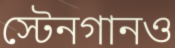
স্টেনগানও